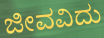
ಜೀವವಿದು